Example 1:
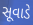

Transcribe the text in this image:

સૂવાડે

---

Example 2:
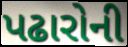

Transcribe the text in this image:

પઢારોની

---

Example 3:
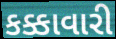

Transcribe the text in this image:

કક્કાવારી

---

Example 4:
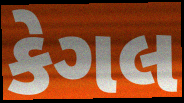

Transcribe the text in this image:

કેગલ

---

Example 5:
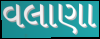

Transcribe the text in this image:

વલાણા